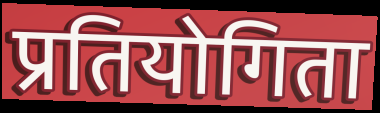
प्रतियोगिता